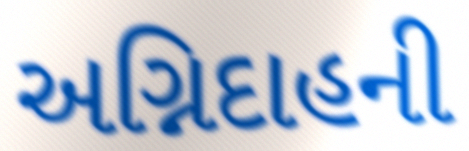
અગ્નિદાહની